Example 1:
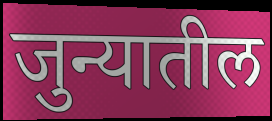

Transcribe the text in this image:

जुन्यातील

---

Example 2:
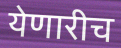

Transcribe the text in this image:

येणारीच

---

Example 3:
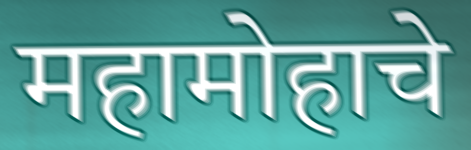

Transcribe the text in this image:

महामोहाचे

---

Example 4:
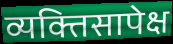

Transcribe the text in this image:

व्यक्तिसापेक्ष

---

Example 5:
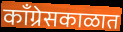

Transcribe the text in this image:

काँग्रेसकाळात